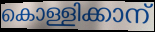
കൊള്ളിക്കാന്